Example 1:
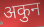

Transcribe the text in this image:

अकुन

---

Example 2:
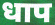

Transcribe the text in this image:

धाप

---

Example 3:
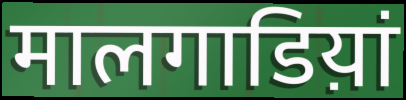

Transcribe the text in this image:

मालगाडिय़ां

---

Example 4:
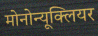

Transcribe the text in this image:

मोनोन्यूक्लियर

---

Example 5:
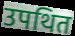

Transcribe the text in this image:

उपथित